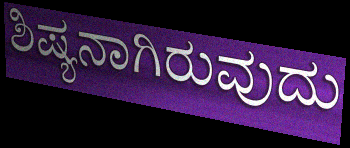
ಶಿಷ್ಯನಾಗಿರುವುದು